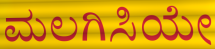
ಮಲಗಿಸಿಯೇ